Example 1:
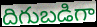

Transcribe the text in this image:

దిగుబడిగా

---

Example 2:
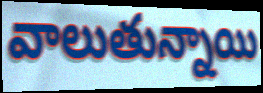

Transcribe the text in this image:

వాలుతున్నాయి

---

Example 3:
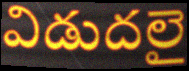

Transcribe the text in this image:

విడుదలై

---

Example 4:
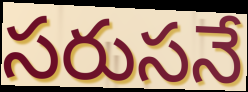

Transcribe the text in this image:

సరుసనే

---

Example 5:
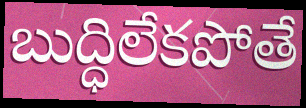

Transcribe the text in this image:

బుద్ధిలేకపోతే